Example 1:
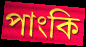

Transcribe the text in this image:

পাংকি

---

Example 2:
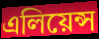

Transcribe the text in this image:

এলিয়েন্স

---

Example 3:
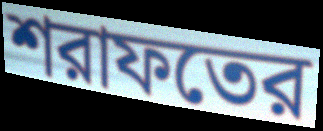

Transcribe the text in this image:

শরাফতের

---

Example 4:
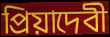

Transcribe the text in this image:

প্রিয়াদেবী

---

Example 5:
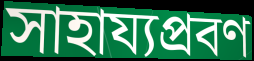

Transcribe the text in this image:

সাহায্যপ্রবণ